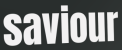
saviour